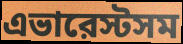
এভারেস্টসম